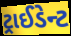
ટ્રાઈડેન્ટ